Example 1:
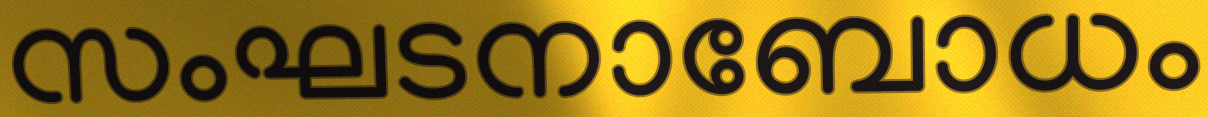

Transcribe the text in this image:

സംഘടനാബോധം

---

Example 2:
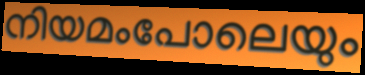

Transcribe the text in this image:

നിയമംപോലെയും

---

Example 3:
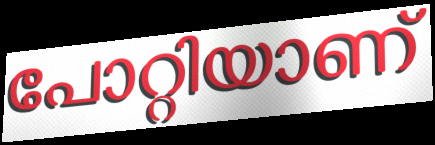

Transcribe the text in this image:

പോറ്റിയാണ്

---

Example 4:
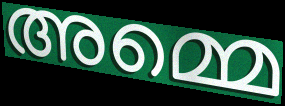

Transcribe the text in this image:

അമ്മെ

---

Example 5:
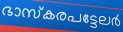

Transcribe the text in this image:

ഭാസ്കരപട്ടേലർ